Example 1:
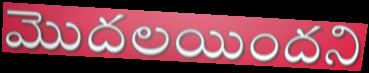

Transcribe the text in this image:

మొదలయిందని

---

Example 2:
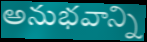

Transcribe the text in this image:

అనుభవాన్ని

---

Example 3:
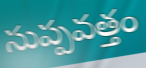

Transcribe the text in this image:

సుప్పవత్తం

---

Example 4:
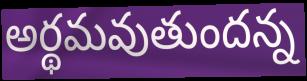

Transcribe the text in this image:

అర్థమవుతుందన్న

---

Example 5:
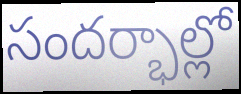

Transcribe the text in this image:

సందర్భాల్లో